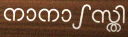
നാനാഽസ്തി